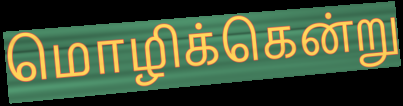
மொழிக்கென்று